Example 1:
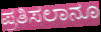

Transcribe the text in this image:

ಪ್ರತಿಸಲಾನೂ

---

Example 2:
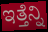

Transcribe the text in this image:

ಇತ್ತೆನ್ನಿ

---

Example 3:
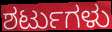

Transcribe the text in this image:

ಶರ್ಟುಗಳು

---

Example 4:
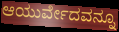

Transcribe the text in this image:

ಆಯುರ್ವೇದವನ್ನೂ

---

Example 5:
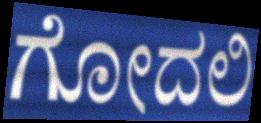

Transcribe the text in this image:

ಗೋದಲಿ